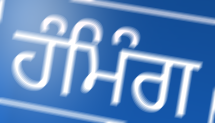
ਹੰਮਿੰਗ